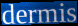
dermis